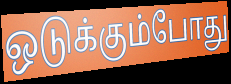
ஒடுக்கும்போது